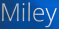
Miley